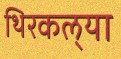
थिरकल्या